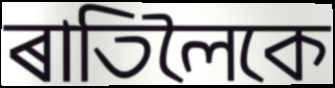
ৰাতিলৈকে